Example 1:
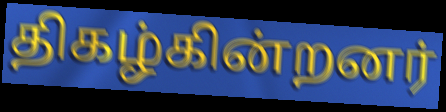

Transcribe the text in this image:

திகழ்கின்றனர்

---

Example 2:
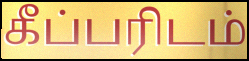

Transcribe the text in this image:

கீப்பரிடம்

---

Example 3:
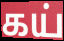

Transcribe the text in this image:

கய்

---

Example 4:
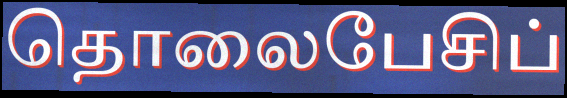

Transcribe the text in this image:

தொலைபேசிப்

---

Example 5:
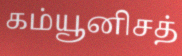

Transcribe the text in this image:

கம்யூனிசத்